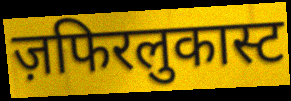
ज़फिरलुकास्ट